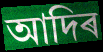
আদিৰ